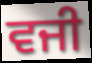
ਵਜੀ